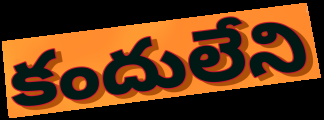
కందులేని